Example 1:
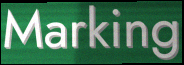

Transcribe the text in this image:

Marking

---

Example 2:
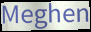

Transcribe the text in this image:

Meghen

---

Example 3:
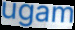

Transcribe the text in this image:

ugam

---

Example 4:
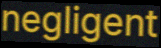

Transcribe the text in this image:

negligent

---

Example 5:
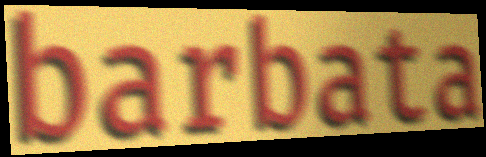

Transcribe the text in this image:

barbata